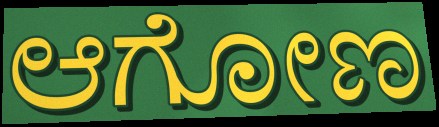
ಆಗೋಣ